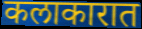
कलाकारात